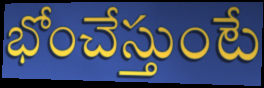
భోంచేస్తుంటే